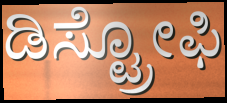
ಡಿಸ್ಟ್ರೋಫಿ